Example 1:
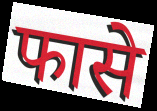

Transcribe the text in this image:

फासे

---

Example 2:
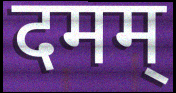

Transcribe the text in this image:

दमम्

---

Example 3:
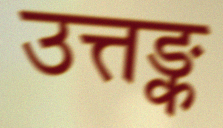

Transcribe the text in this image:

उत्तङ्क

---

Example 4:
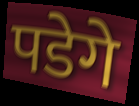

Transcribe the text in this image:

पडेगे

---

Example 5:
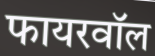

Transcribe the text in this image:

फायरवॉल